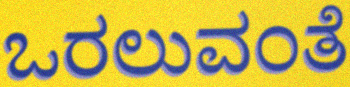
ಒರಲುವಂತೆ